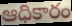
ఆధికారం